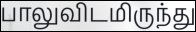
பாலுவிடமிருந்து